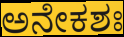
ಅನೇಕಶಃ